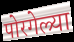
पोरगेल्या